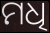
ମଧି